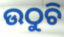
ଉଠୁଚି